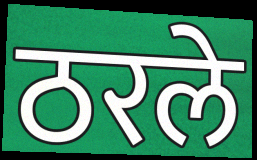
ठरले